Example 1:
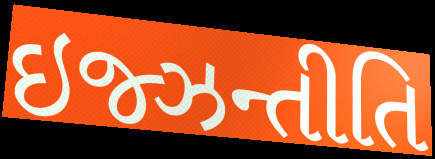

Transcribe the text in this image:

ઇજ્ઝન્તીતિ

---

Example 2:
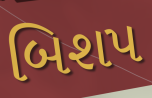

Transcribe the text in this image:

બિશપ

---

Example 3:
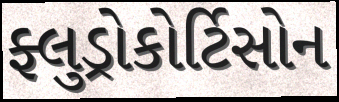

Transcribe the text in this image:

ફ્લુડ્રોકોર્ટિસોન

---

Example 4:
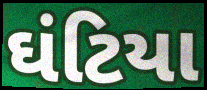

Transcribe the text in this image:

ઘંટિયા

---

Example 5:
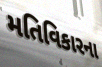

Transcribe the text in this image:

મતિવિકારના